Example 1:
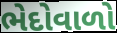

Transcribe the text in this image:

ભેદોવાળો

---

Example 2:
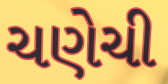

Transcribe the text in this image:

ચણેચી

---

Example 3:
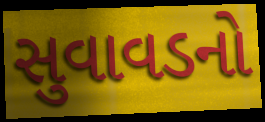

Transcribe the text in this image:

સુવાવડનો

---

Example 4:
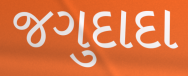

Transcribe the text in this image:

જગુદાદા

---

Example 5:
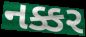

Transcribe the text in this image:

નક્કર